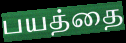
பயத்தை